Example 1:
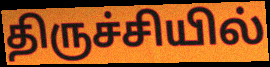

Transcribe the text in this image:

திருச்சியில்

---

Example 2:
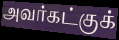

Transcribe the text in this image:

அவர்கட்குக்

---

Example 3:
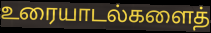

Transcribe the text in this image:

உரையாடல்களைத்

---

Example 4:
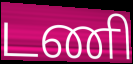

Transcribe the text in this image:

டணி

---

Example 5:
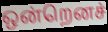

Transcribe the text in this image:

ஒன்றெனச்